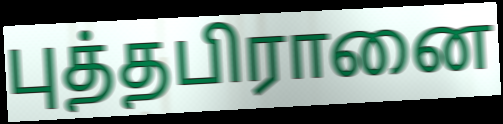
புத்தபிரானை